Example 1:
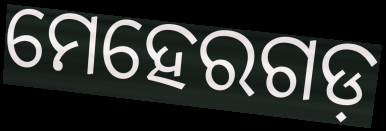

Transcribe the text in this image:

ମେହେରଗଡ଼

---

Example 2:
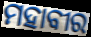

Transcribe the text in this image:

ମହାବୀର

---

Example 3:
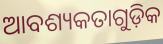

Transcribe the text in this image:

ଆବଶ୍ୟକତାଗୁଡ଼ିକ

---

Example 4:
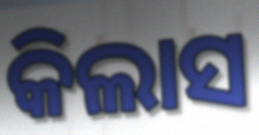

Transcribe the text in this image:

କିଲାସ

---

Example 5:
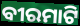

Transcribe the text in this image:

ବୀରମାଟି